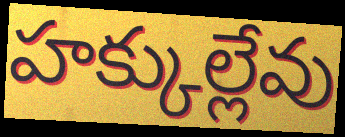
హక్కుల్లేవు